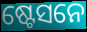
ଷ୍ଟେସନେ